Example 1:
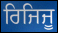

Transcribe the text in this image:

ਰਿਜਿਜੂ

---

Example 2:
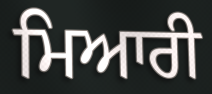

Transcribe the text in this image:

ਮਿਆਰੀ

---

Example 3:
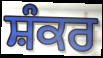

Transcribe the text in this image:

ਸ਼ੰਕਰ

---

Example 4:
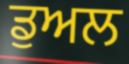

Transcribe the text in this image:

ਡੁਅਲ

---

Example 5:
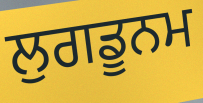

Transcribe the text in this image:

ਲੁਗਡੂਨਮ